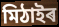
মিঠাইৰ